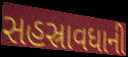
સહસ્રાવધાની